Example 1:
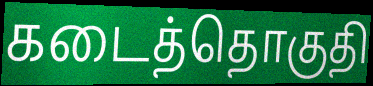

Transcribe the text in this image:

கடைத்தொகுதி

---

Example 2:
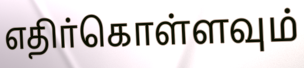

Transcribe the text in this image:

எதிர்கொள்ளவும்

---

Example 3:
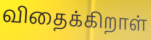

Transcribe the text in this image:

விதைக்கிறாள்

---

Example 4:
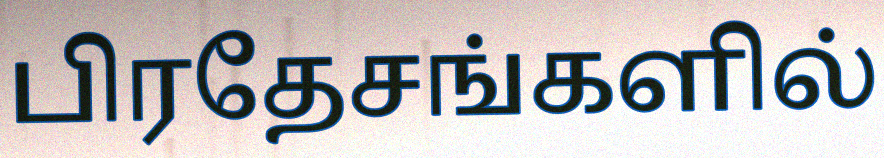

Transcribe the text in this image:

பிரதேசங்களில்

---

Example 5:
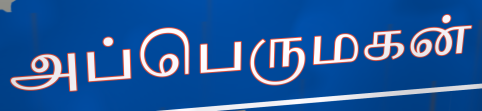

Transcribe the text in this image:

அப்பெருமகன்